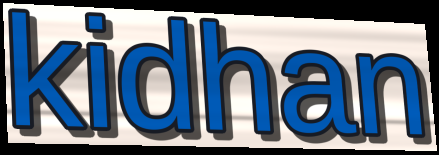
kidhan